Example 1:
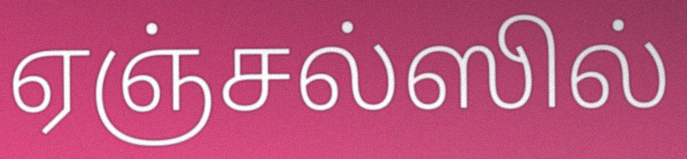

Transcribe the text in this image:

ஏஞ்சல்ஸில்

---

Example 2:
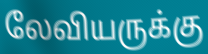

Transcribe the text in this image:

லேவியருக்கு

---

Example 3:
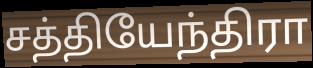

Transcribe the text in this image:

சத்தியேந்திரா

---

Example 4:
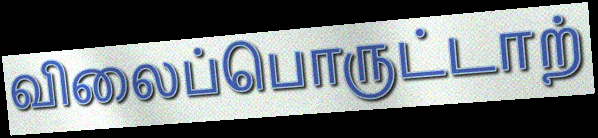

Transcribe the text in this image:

விலைப்பொருட்டாற்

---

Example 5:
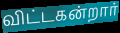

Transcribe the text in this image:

விட்டகன்றார்